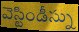
వెస్టిండీస్ను